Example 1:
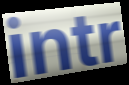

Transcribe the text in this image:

intr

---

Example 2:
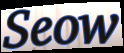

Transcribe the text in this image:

Seow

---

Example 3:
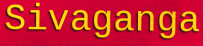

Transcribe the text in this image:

Sivaganga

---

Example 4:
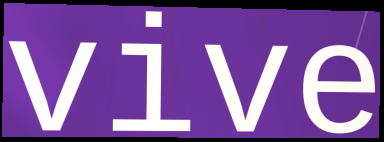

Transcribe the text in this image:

vive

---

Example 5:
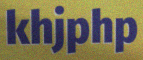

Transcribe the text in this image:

khjphp